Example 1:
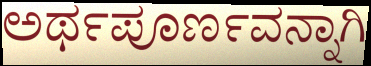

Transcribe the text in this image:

ಅರ್ಥಪೂರ್ಣವನ್ನಾಗಿ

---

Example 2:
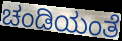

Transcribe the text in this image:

ಚಂಡಿಯಂತೆ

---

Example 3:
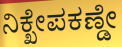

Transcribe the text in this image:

ನಿಕ್ಖೇಪಕಣ್ಡೇ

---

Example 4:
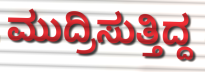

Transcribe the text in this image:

ಮುದ್ರಿಸುತ್ತಿದ್ದ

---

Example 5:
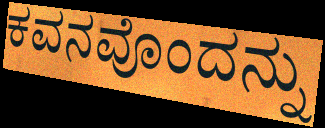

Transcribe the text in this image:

ಕವನವೊಂದನ್ನು